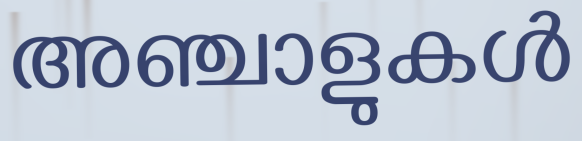
അഞ്ചാളുകൾ